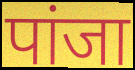
पांजा